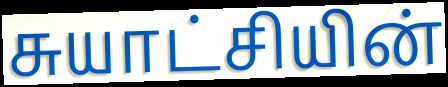
சுயாட்சியின்